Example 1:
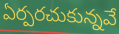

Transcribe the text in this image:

ఏర్పరచుకున్నవే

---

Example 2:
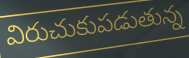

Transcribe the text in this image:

విరుచుకుపడుతున్న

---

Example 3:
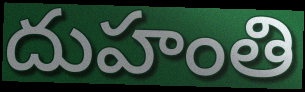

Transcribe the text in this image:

దుహంతి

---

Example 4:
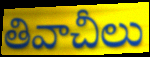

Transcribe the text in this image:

తివాచీలు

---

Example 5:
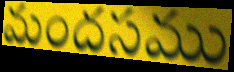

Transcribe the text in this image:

మందసము